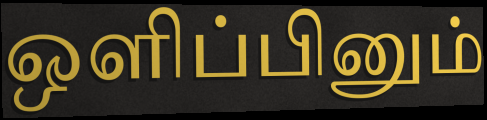
ஒளிப்பினும்